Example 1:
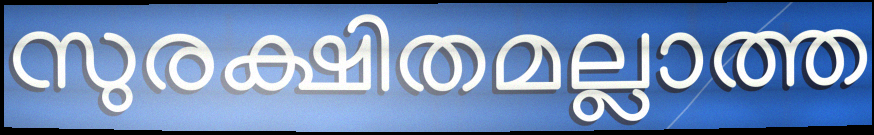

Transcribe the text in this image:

സുരക്ഷിതമല്ലാത്ത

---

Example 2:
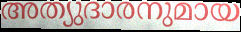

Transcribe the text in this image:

അത്യുദാരനുമായ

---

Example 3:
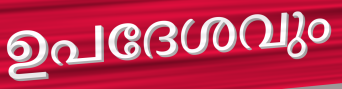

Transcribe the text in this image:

ഉപദേശവും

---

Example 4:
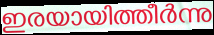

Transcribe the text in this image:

ഇരയായിത്തീർന്നു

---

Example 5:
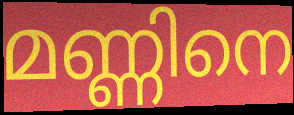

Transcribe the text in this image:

മണ്ണിനെ